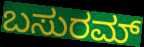
ಬಸುರಮ್